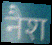
नैश